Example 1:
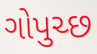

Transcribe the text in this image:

ગોપુચ્છ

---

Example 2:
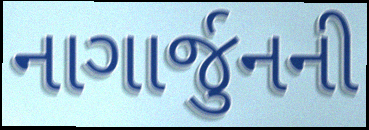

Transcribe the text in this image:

નાગાર્જુનની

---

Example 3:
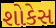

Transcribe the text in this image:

શોકેસ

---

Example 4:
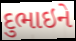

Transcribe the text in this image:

દુભાઇને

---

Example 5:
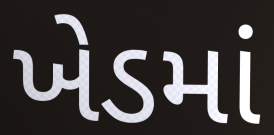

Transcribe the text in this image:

ખેડમાં